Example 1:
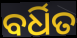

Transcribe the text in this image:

ବର୍ଧିତ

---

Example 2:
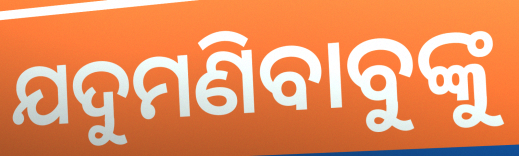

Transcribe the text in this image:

ଯଦୁମଣିବାବୁଙ୍କୁ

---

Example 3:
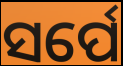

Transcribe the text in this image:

ସର୍ପେ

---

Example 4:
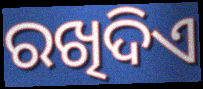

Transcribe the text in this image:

ରଖିଦିଏ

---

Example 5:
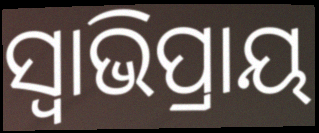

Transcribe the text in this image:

ସ୍ଵାଭିପ୍ରାୟ